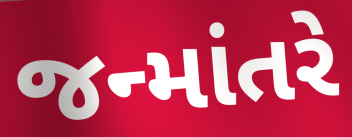
જન્માંતરે